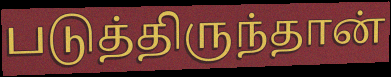
படுத்திருந்தான்